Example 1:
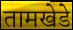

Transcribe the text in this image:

तामखेडे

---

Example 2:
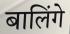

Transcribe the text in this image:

बालिंगे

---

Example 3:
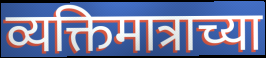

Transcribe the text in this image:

व्यक्तिमात्राच्या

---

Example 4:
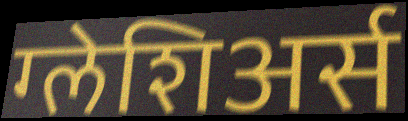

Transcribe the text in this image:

ग्लेशिअर्स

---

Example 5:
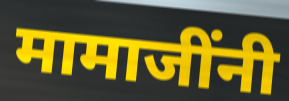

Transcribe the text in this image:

मामाजींनी